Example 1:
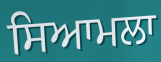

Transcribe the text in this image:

ਸਿਆਮਲਾ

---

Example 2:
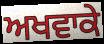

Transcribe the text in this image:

ਅਖਵਾਕੇ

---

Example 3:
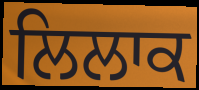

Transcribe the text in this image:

ਲਿਲਾਕ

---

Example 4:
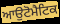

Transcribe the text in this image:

ਆਉਟੋਮੈਟਿਕ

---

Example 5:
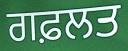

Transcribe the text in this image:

ਗਫ਼ਲਤ